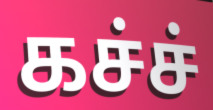
கச்ச்